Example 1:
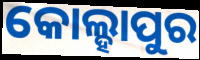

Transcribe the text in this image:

କୋଲ୍ହାପୁର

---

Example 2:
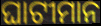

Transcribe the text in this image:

ଘାଟୀମାନ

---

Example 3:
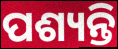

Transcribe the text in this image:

ପଶ୍ୟନ୍ତି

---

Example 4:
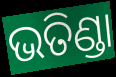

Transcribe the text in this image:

ଭତିଣ୍ଡା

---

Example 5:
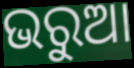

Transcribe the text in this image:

ଭରୁଆ